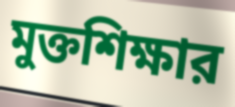
মুক্তশিক্ষার